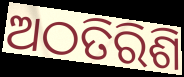
ଅଠତିରିଶି